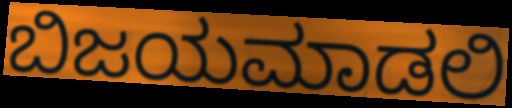
ಬಿಜಯಮಾಡಲಿ